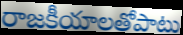
రాజకీయాలతోపాటు